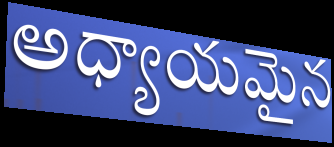
అధ్యాయమైన